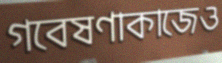
গবেষণাকাজেও